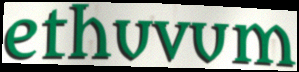
ethuvum